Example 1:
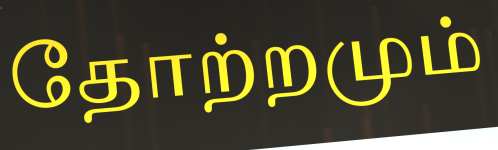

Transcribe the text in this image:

தோற்றமும்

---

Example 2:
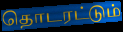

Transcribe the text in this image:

தொடரட்டும்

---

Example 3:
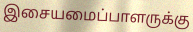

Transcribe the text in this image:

இசையமைப்பாளருக்கு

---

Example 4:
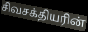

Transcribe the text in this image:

சிவசக்தியரின்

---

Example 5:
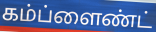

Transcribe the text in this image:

கம்ப்ளைண்ட்